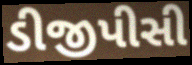
ડીજીપીસી